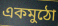
একমুঠো